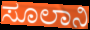
ಸೂಲಾನಿ